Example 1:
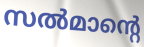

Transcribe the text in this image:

സൽമാന്റെ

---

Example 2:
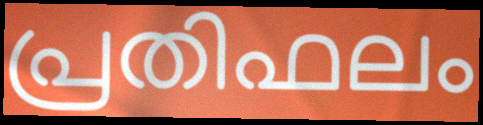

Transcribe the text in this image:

പ്രതിഫലം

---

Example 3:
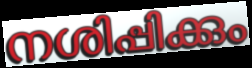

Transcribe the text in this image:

നശിപ്പിക്കും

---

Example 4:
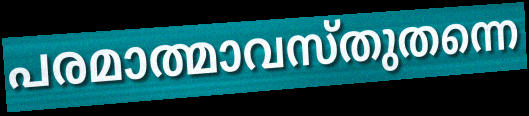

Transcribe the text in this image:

പരമാത്മാവസ്തുതന്നെ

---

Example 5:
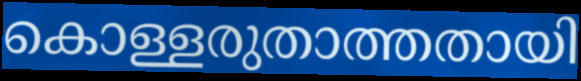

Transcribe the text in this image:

കൊള്ളരുതാത്തതായി